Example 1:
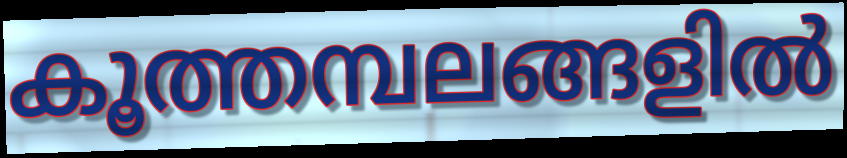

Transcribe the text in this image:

കൂത്തമ്പലങ്ങളിൽ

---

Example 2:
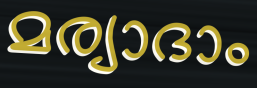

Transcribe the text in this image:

മര്യാദാം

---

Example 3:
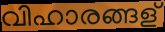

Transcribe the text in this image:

വിഹാരങ്ങള്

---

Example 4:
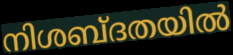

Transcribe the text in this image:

നിശബ്ദതയിൽ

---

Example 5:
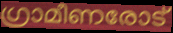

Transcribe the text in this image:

ഗ്രാമീണരോട്